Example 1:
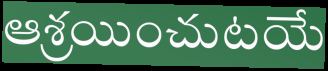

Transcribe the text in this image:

ఆశ్రయించుటయే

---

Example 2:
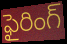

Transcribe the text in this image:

ఫైరింగ్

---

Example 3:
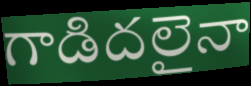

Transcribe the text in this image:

గాడిదలైనా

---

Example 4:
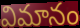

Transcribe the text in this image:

విమానం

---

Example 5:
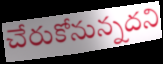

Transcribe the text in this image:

చేరుకోనున్నదని